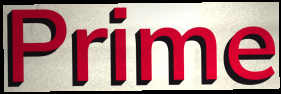
Prime